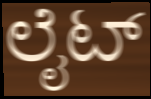
ಲೈಟ್